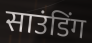
साउंडिंग